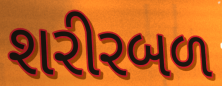
શરીરબળ